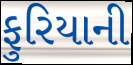
ફુરિયાની